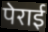
पेराई